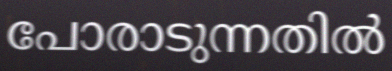
പോരാടുന്നതിൽ